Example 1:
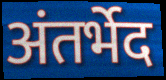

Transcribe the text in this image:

अंतर्भेद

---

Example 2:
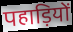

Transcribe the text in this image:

पहाड़ियों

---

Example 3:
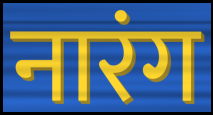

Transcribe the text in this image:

नारंग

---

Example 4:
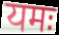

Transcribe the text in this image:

यमः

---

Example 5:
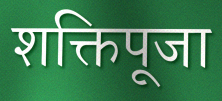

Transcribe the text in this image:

शक्तिपूजा